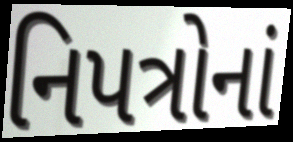
નિપત્રોનાં